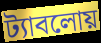
ট্যাবলোয়